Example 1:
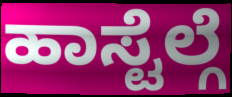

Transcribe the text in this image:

ಹಾಸ್ಟೆಲ್ಗೆ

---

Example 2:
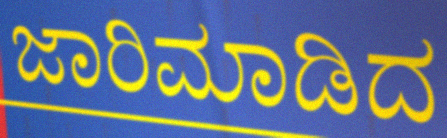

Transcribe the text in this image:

ಜಾರಿಮಾಡಿದ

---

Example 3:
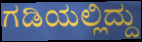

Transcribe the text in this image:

ಗಡಿಯಲ್ಲಿದ್ದು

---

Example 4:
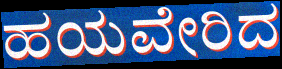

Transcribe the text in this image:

ಹಯವೇರಿದ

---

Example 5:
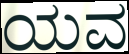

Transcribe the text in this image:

ಯವ